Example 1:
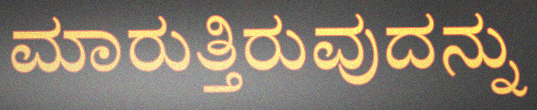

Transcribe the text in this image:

ಮಾರುತ್ತಿರುವುದನ್ನು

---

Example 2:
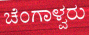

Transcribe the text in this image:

ಚೆಂಗಾಳ್ವರು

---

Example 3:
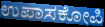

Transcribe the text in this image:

ಉಪಾಸಕೋಪಿ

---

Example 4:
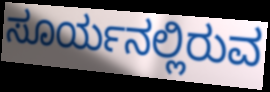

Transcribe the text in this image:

ಸೂರ್ಯನಲ್ಲಿರುವ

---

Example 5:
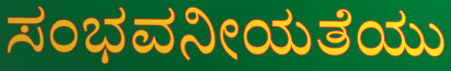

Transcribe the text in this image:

ಸಂಭವನೀಯತೆಯು